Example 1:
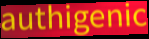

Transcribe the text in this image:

authigenic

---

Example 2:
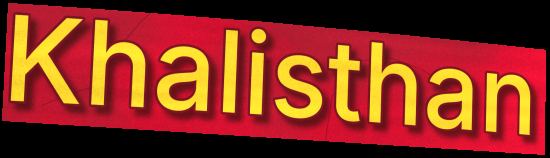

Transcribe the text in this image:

Khalisthan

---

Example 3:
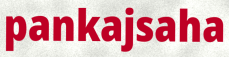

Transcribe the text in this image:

pankajsaha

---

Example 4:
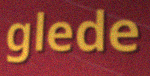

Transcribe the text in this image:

glede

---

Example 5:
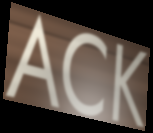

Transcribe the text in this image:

ACK